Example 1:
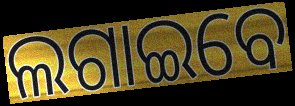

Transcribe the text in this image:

ଲଗାଇବେ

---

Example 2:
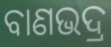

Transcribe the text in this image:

ବାଣଭଦ୍ର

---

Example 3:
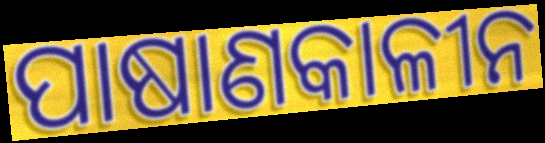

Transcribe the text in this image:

ପାଷାଣକାଳୀନ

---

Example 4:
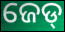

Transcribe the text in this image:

ଜେଡ୍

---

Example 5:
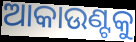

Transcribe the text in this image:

ଆକାଉଣ୍ଟକୁ